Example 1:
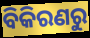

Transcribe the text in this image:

ବିକିରଣରୁ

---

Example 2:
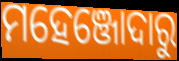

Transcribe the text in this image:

ମହେଞ୍ଜୋଦାରୁ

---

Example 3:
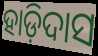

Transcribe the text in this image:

ହାଡ଼ିଦାସ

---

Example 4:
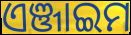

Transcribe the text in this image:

ଏଞ୍ଜାଇମ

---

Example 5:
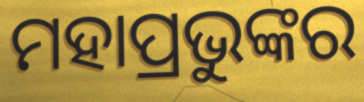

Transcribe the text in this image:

ମହାପ୍ରଭୁଙ୍କର